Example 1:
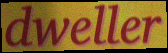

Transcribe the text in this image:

dweller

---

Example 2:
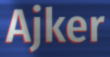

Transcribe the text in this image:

Ajker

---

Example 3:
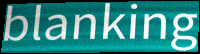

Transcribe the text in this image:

blanking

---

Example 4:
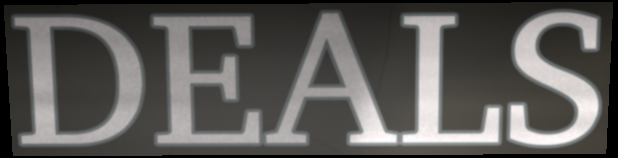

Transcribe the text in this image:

DEALS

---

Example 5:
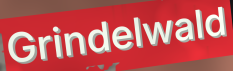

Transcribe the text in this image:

Grindelwald